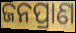
ଜନପ୍ରାଣ